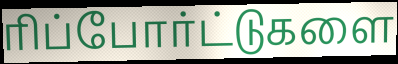
ரிப்போர்ட்டுகளை